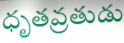
ధృతవ్రతుడు